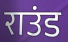
राउंड